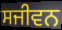
ਸਜੀਵਨ